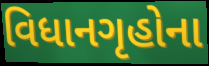
વિધાનગૃહોના